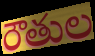
రౌతుల